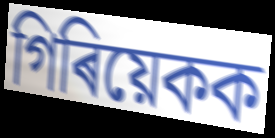
গিৰিয়েকক